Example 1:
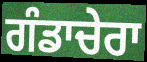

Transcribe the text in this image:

ਗੰਡਾਚੇਰਾ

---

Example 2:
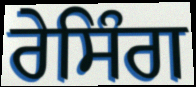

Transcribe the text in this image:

ਰੇਸਿੰਗ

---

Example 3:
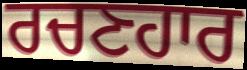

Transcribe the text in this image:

ਰਚਣਹਾਰ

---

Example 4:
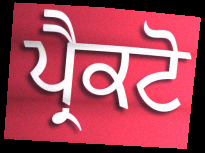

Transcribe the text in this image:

ਪ੍ਰੈਕਟੋ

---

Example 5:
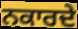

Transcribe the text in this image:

ਨਕਾਰਦੇ